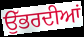
ਉੱਭਰਦੀਆਂ